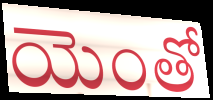
యెంతో